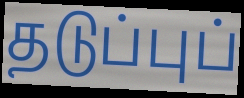
தடுப்புப்